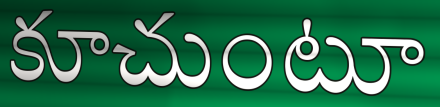
కూచుంటూ